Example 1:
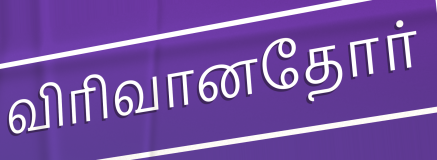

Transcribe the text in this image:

விரிவானதோர்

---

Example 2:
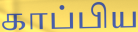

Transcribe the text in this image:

காப்பிய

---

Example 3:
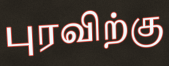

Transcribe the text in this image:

புரவிற்கு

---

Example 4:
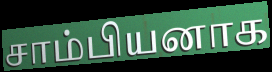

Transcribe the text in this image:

சாம்பியனாக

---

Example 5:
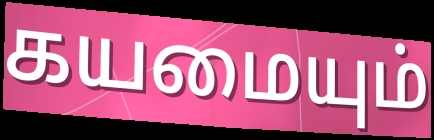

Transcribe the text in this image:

கயமையும்